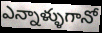
ఎన్నాళ్ళుగానో